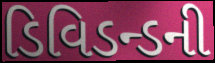
ડિવિડન્ડની